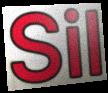
Sil